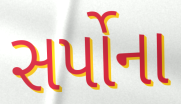
સર્પોના